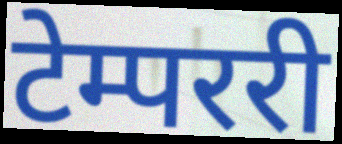
टेम्पररी